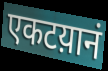
एकटय़ानं